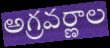
అగ్రవర్ణాల